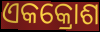
ଏକକ୍ରୋଶ